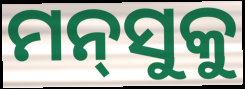
ମନ୍‌ସୁକୁ